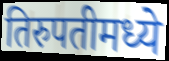
तिरुपतीमध्ये